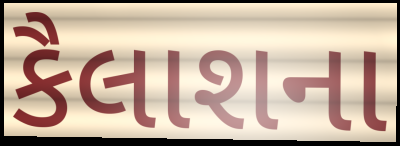
કૈલાશના